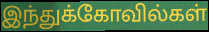
இந்துக்கோவில்கள்